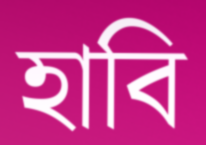
হাবি